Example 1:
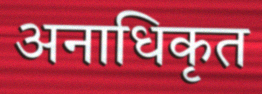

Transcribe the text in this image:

अनाधिकृत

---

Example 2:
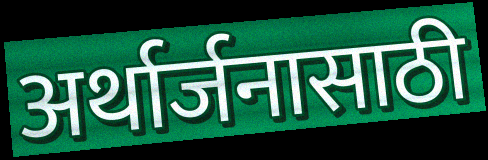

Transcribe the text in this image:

अर्थार्जनासाठी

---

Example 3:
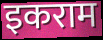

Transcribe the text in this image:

इकराम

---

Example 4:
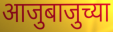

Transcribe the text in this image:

आजुबाजुच्या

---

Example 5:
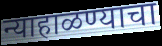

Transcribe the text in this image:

न्याहाळण्याचा